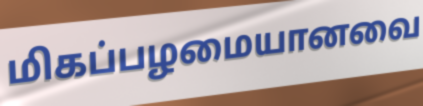
மிகப்பழமையானவை